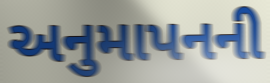
અનુમાપનની